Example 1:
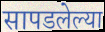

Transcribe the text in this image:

सापडलेल्या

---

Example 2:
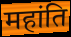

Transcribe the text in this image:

महांति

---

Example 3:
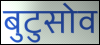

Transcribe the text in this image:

बुटुसोव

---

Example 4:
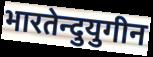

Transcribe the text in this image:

भारतेन्दुयुगीन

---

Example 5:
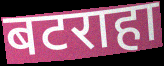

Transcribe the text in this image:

बटराहा